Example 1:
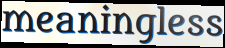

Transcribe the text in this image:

meaningless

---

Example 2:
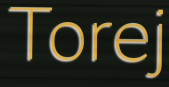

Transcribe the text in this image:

Torej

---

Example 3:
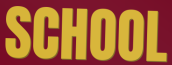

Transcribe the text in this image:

SCHOOL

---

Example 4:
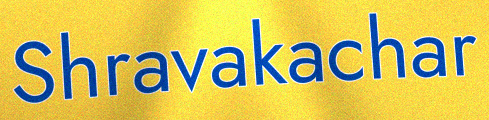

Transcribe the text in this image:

Shravakachar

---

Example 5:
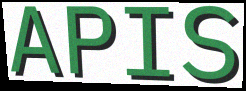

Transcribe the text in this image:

APIS